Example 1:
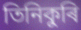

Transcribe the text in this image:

তিনিকুৰি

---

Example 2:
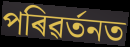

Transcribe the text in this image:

পৰিৱৰ্তনত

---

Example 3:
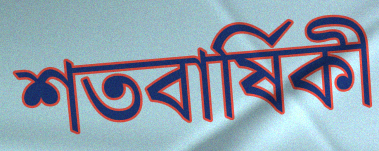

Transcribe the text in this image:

শতবাৰ্ষিকী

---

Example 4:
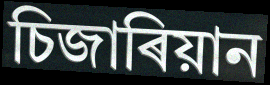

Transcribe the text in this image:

চিজাৰিয়ান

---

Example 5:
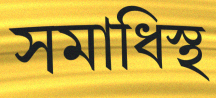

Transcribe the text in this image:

সমাধিস্থ